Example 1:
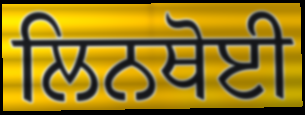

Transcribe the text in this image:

ਲਿਨਥੋਈ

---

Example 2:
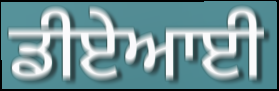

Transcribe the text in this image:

ਡੀਏਆਈ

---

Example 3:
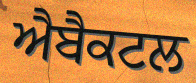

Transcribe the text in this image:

ਐਬੈਕਟਲ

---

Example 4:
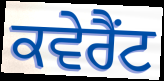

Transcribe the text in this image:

ਕਵੇਰੈਂਟ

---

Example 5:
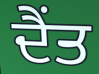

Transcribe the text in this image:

ਦੈਂਤ